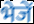
भेजें